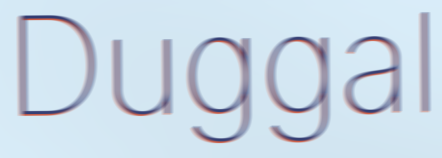
Duggal